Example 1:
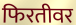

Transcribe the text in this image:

फिरतीवर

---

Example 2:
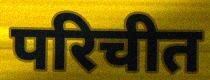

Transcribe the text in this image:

परिचीत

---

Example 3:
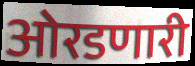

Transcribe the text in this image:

ओरडणारी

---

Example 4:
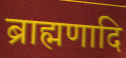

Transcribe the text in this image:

ब्राह्मणादि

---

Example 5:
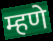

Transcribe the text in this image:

म्हणे